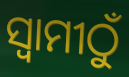
ସ୍ୱାମୀଠୁଁ